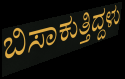
ಬಿಸಾಕುತ್ತಿದ್ದಳು